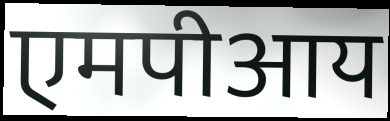
एमपीआय